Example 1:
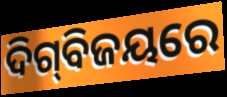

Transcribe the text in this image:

ଦିଗ୍‌ବିଜୟରେ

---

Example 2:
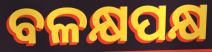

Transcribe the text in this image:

ବଳକ୍ଷପକ୍ଷ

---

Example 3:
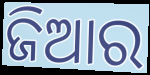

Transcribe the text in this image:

ଜିଆର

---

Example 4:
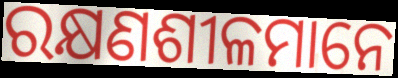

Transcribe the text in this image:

ରକ୍ଷଣଶୀଳମାନେ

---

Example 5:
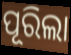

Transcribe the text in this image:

ପୂରିଲା